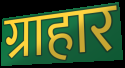
ग्राहार